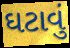
ઘટાવું